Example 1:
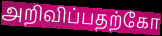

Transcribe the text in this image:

அறிவிப்பதற்கோ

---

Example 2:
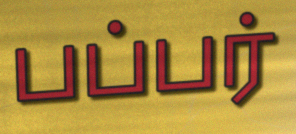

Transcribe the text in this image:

பப்பர்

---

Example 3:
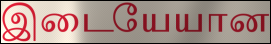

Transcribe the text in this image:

இடையேயான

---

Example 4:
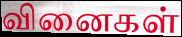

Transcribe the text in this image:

வினைகள்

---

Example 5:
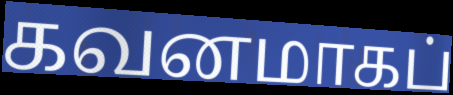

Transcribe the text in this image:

கவனமாகப்